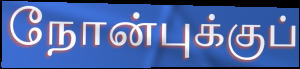
நோன்புக்குப்